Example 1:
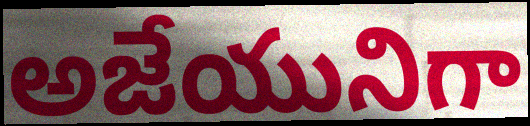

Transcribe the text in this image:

అజేయునిగా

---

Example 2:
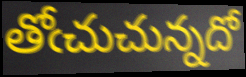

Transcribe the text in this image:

తోఁచుచున్నదో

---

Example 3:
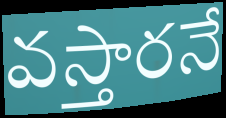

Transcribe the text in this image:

వస్తారనే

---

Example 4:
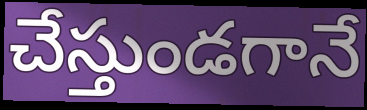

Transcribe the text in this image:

చేస్తుండగానే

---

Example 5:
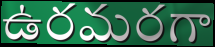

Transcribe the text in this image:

ఉరమరగా